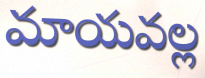
మాయవల్ల